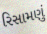
રિસામણું